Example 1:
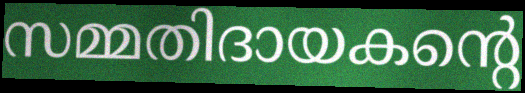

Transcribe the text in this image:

സമ്മതിദായകന്റെ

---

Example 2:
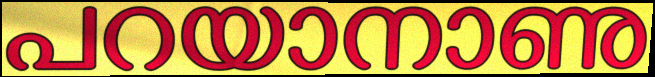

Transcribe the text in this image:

പറയാനാണു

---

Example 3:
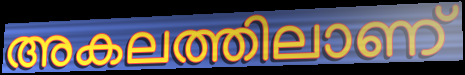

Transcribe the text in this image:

അകലത്തിലാണ്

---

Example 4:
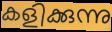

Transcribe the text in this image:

കളിക്കുന്നു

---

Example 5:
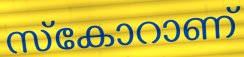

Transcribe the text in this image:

സ്‌കോറാണ്